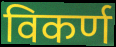
विकर्ण